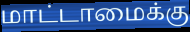
மாட்டாமைக்கு